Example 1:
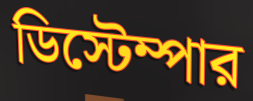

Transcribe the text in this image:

ডিস্টেম্পার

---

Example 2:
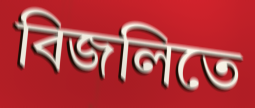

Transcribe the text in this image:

বিজলিতে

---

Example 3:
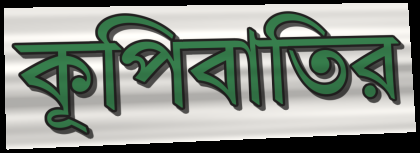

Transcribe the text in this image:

কূপিবাতির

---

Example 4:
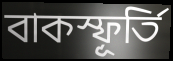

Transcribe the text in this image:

বাকস্ফূর্তি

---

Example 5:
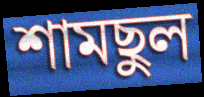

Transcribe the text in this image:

শামছুল